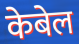
केबेल